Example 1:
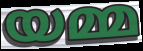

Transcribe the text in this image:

യമ്മ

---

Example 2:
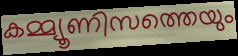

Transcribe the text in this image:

കമ്മ്യൂണിസത്തെയും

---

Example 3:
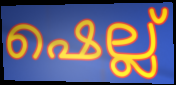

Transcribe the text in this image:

ഷെല്ല്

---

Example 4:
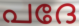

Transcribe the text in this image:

പദേ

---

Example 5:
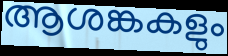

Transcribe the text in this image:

ആശങ്കകളും